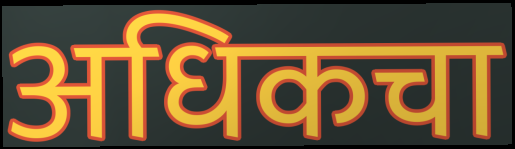
अधिकचा